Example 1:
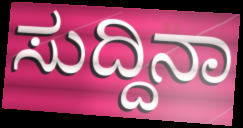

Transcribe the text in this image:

ಸುದ್ದಿನಾ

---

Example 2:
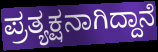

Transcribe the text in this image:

ಪ್ರತ್ಯಕ್ಷನಾಗಿದ್ದಾನೆ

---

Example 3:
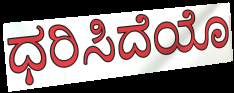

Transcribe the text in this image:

ಧರಿಸಿದೆಯೊ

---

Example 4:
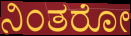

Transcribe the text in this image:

ನಿಂತರೋ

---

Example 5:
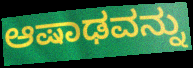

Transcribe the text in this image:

ಆಷಾಢವನ್ನು